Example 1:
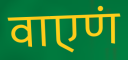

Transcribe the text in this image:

वाएणं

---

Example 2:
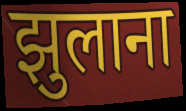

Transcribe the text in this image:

झुलाना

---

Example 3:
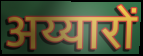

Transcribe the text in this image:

अय्यारों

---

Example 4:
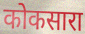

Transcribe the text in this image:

कोकसारा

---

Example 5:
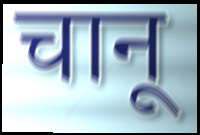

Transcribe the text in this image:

चानू